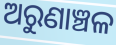
ଅରୁଣାଞ୍ଚଳ